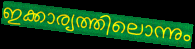
ഇക്കാര്യത്തിലൊന്നും